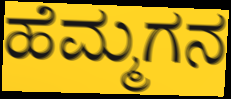
ಹೆಮ್ಮಗನ